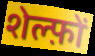
शेल्फ़ों